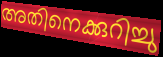
അതിനെക്കുറിച്ചു